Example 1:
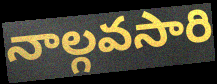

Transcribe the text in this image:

నాల్గవసారి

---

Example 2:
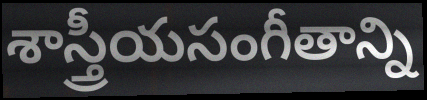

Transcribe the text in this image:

శాస్త్రీయసంగీతాన్ని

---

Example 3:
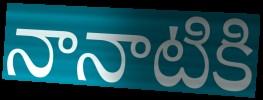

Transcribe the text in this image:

నానాటికి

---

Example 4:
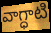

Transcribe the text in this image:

వాగ్ధాటి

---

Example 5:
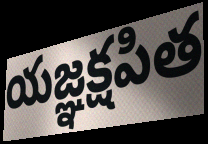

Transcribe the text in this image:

యజ్ఞక్షపిత